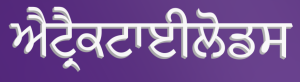
ਐਟ੍ਰੈਕਟਾਈਲੋਡਸ